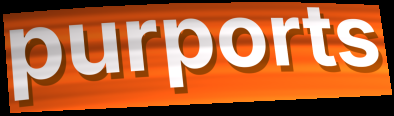
purports